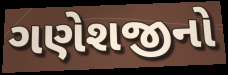
ગણેશજીનો